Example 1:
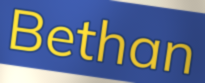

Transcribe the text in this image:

Bethan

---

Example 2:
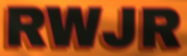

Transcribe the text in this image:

RWJR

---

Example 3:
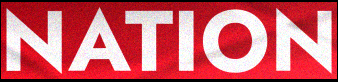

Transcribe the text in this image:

NATION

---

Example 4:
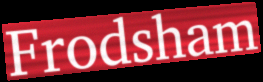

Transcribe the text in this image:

Frodsham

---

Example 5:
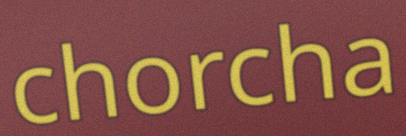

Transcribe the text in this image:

chorcha